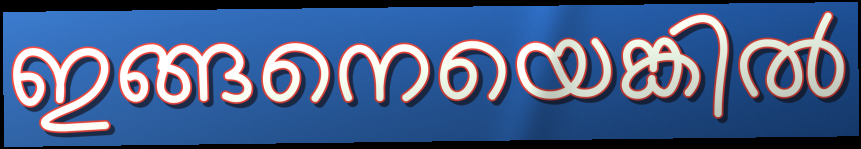
ഇങ്ങനെയെങ്കിൽ